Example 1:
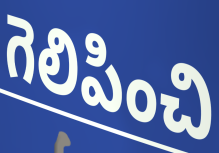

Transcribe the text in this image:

గెలిపించి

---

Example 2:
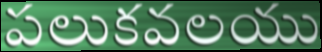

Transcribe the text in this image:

పలుకవలయు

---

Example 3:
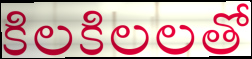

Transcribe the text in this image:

కిలకిలలతో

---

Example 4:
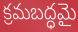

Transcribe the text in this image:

క్రమబద్ధమై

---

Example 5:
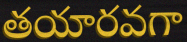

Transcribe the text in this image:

తయారవగా